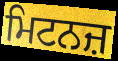
ਮਿਟਨਜ਼